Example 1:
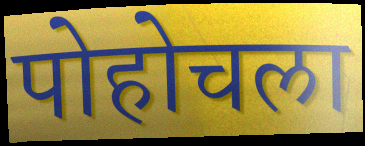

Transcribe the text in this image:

पोहोचला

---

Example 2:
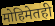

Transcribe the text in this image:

मोहिमेतही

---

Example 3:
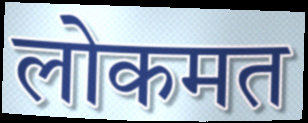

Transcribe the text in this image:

लोकमत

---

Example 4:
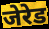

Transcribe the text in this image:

जेरेड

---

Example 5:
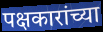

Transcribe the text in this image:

पक्षकारांच्या